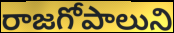
రాజగోపాలుని